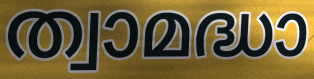
ത്വാമദ്ധാ